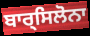
ਬਾਰ੍ਸਿਲੋਨਾ